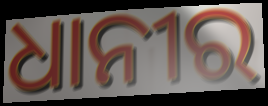
ଧାନୀର